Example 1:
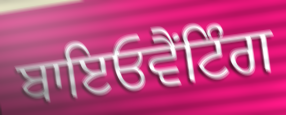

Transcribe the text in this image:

ਬਾਇਓਵੈਂਟਿੰਗ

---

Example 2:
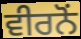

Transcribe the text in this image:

ਵੀਰਨੋਂ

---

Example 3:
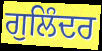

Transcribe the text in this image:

ਗੁਲਿੰਦਰ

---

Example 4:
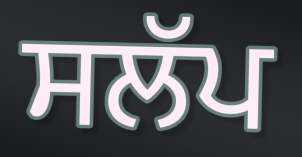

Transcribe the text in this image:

ਸਲੱਪ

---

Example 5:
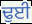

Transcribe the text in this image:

ਢੁਈ